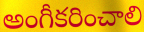
అంగీకరించాలి